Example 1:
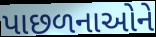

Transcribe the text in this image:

પાછળનાઓને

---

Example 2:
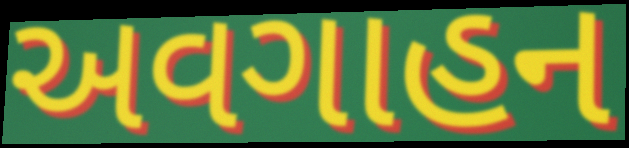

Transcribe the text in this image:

અવગાહન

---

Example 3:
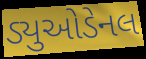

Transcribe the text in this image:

ડ્યુઓડેનલ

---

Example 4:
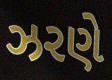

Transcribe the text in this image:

ઝરણે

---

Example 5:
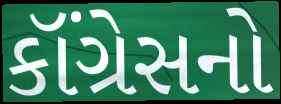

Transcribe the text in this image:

કૉંગ્રેસનો